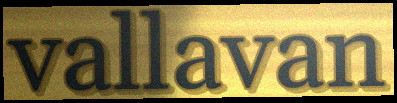
vallavan